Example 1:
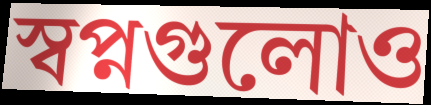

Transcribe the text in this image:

স্বপ্নগুলোও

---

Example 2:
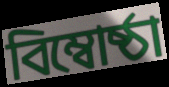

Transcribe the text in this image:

বিম্বোষ্ঠা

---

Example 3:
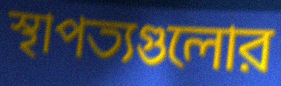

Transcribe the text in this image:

স্থাপত্যগুলোর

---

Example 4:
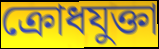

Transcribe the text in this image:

ক্রোধযুক্তা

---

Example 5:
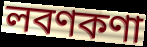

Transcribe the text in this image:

লবণকণা